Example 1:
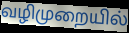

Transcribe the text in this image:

வழிமுறையில்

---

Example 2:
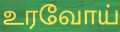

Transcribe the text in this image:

உரவோய்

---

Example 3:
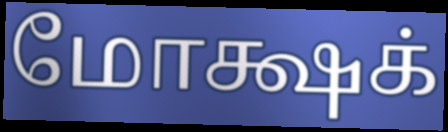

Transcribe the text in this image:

மோக்ஷக்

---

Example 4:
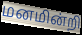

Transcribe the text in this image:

மனமின்றி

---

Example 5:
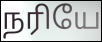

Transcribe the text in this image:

நரியே